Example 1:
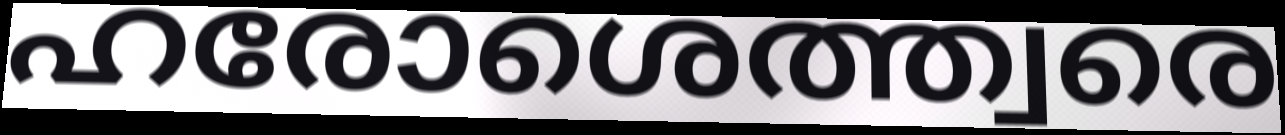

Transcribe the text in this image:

ഹരോശെത്ത്വരെ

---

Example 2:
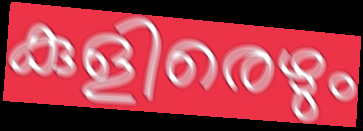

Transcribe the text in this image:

കുളിരെഴും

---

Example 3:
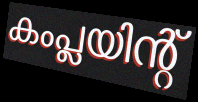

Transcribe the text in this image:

കംപ്ലയിന്റ്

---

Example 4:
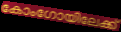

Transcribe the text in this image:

കോംഗോയിലേക്ക്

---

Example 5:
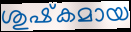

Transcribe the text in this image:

ശുഷ്‌കമായ